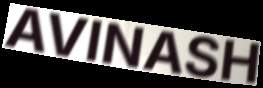
AVINASH